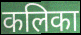
कलिका